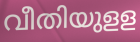
വീതിയുളള